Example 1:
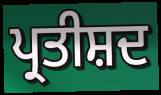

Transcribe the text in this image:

ਪ੍ਰਤੀਸ਼ਦ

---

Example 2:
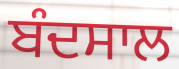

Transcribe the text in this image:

ਬੰਦਸਾਲ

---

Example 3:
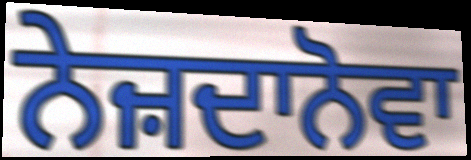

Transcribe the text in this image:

ਨੇਜ਼ਦਾਨੋਵਾ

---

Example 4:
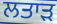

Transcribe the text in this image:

ਲਤਾੜ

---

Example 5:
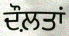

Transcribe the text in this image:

ਦੌਲ਼ਤਾਂ